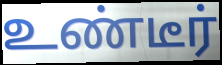
உண்டீர்